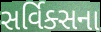
સર્વિક્સના